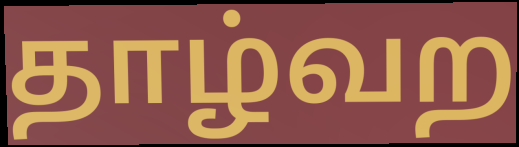
தாழ்வற